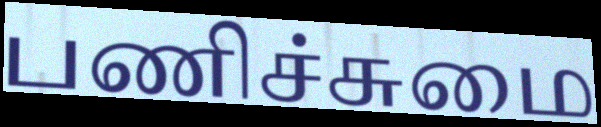
பணிச்சுமை